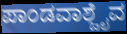
ಪಾಂಡವಾಶ್ಚೈವ